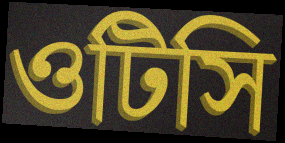
ওটিসি